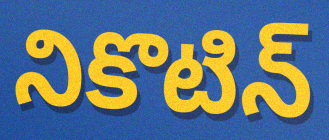
నికొటిన్